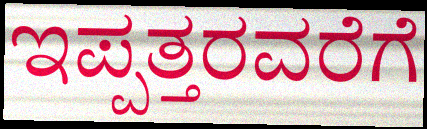
ಇಪ್ಪತ್ತರವರೆಗೆ